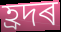
হ্ৰদৰ